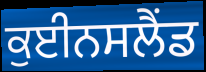
ਕੁਈਨਸਲੈਂਡ